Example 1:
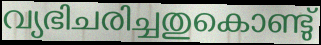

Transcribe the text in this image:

വ്യഭിചരിച്ചതുകൊണ്ടു്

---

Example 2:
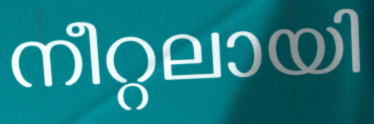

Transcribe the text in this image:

നീറ്റലായി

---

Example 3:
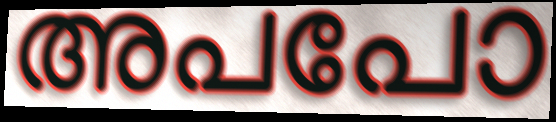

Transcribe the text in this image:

അപപോ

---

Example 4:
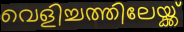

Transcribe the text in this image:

വെളിച്ചത്തിലേയ്ക്ക്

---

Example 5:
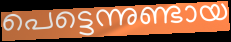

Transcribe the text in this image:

പെട്ടെന്നുണ്ടായ